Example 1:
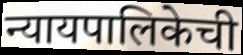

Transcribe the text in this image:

न्यायपालिकेची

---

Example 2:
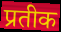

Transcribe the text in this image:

प्रतीक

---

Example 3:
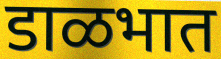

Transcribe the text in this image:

डाळभात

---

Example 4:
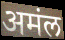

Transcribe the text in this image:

अमंल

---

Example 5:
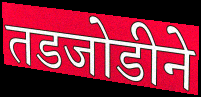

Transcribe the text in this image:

तडजोडीने